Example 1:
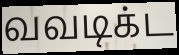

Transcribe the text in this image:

வவடிக்ட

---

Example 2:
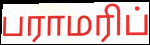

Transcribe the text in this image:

பராமரிப்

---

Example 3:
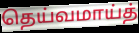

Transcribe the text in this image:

தெய்வமாய்த்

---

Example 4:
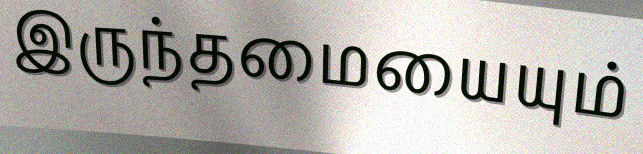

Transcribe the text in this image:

இருந்தமையையும்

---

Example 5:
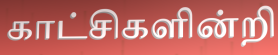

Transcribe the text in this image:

காட்சிகளின்றி